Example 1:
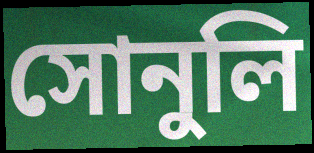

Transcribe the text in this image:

সোনুলি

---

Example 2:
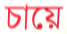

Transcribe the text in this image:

চায়ে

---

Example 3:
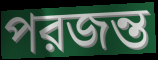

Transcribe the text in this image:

পরজন্ত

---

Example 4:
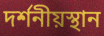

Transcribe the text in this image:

দর্শনীয়স্থান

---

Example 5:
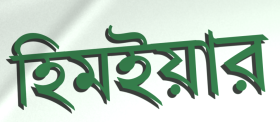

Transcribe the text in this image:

হিমইয়ার